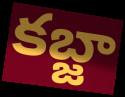
కబ్జా